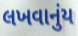
લખવાનુંય